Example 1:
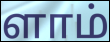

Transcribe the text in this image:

ளாம்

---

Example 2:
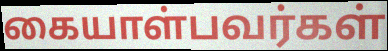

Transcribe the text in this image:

கையாள்பவர்கள்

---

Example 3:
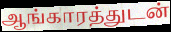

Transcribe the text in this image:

ஆங்காரத்துடன்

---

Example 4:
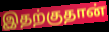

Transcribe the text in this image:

இதற்குதான்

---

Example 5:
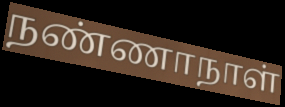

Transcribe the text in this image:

நண்ணாநாள்